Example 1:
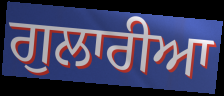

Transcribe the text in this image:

ਗੁਲਾਰੀਆ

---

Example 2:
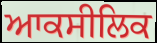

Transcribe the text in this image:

ਆਕਸੀਲਿਕ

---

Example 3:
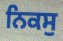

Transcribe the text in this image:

ਨਿਕਸੁ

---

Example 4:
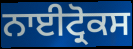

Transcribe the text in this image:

ਨਾਈਟ੍ਰੋਕਸ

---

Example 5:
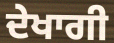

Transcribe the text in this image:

ਦੇਖਾਗੀ